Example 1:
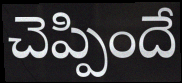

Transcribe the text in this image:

చెప్పిందే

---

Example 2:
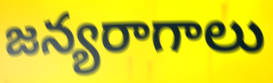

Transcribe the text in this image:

జన్యరాగాలు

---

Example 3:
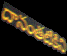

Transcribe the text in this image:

దానంతటికిని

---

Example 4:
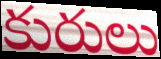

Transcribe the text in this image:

కురులు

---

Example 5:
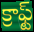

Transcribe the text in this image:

క్రాఫ్ట్